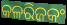
କଳରିଜକଂ